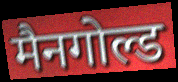
मैनगोल्ड